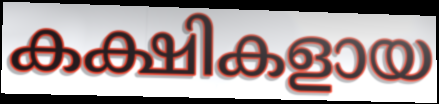
കക്ഷികളായ